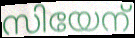
സിയേന്